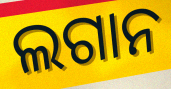
ଲଗାନ